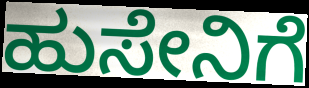
ಹುಸೇನಿಗೆ